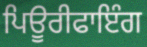
ਪਿਊਰੀਫਾਇੰਗ